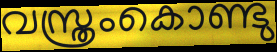
വസ്ത്രംകൊണ്ടു